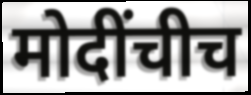
मोदींचीच